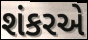
શંકરએ